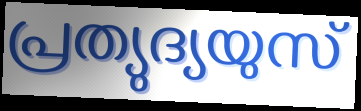
പ്രത്യുദ്യയുസ്